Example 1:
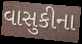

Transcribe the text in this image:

વાસુકીના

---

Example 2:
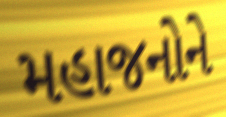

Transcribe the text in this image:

મહાજનોને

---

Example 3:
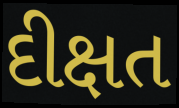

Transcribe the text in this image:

દીક્ષત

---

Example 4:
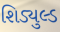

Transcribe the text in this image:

શિડ્યુલ્ડ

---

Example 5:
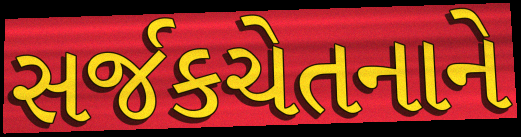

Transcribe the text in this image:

સર્જકચેતનાને